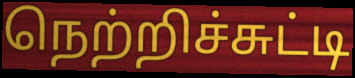
நெற்றிச்சுட்டி